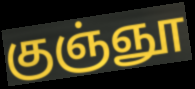
குஞ்ஞூ